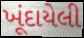
ખૂંદાયેલી